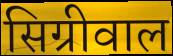
सिग्रीवाल